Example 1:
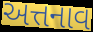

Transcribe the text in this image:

અત્તનાવ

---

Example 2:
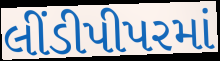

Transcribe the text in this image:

લીંડીપીપરમાં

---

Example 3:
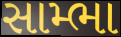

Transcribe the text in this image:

સામ્ભા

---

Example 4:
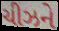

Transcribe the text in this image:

ચીઝને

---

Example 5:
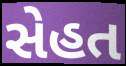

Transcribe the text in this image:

સેહત